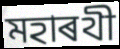
মহাৰথী